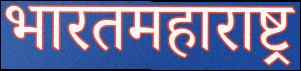
भारतमहाराष्ट्र